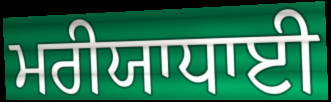
ਮਰੀਯਾਧਾਈ